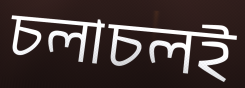
চলাচলই